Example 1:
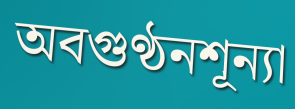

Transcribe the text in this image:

অবগুণ্ঠনশূন্যা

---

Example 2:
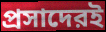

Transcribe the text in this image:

প্রসাদেরই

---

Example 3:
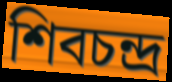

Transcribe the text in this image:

শিবচন্দ্র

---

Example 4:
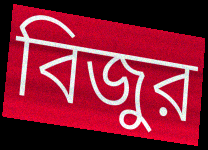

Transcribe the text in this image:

বিজুর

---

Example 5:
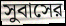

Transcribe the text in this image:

সুবাসের